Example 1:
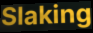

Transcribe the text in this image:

Slaking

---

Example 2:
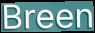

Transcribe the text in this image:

Breen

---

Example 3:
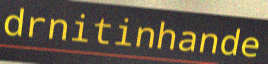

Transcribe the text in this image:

drnitinhande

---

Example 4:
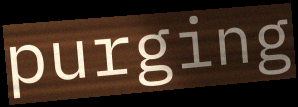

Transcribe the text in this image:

purging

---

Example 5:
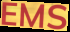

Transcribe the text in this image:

EMS